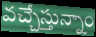
వచ్చేస్తున్నాం